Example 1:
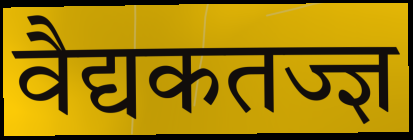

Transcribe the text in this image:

वैद्यकतज्ज्ञ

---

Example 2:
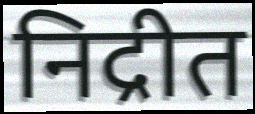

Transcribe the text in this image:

निद्रीत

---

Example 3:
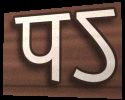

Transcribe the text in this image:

पऽ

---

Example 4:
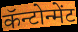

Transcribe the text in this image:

कॅन्टोन्मेंट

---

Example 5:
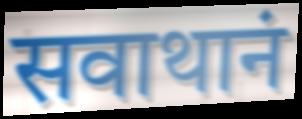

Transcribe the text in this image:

सवाथानं